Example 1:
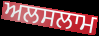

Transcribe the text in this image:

ਅਲਸਲਾਮ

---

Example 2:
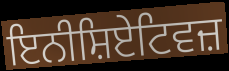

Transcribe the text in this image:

ਇਨੀਸ਼ਿਏਟਿਵਜ਼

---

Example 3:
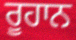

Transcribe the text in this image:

ਰੂਹਾਨ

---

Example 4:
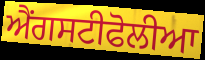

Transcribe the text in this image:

ਐਂਗਸਟੀਫੋਲੀਆ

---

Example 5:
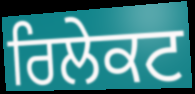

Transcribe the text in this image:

ਰਿਲੇਕਟ